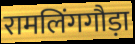
रामलिंगगौड़ा